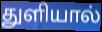
துளியால்